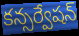
కన్సర్వేషన్